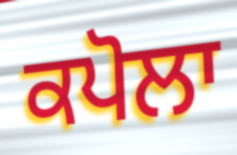
ਕਪੋਲਾ